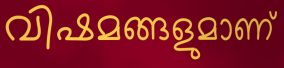
വിഷമങ്ങളുമാണ്